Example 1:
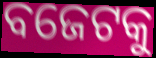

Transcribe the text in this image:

ବଜେଟକୁ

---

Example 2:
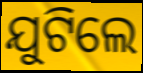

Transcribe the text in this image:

ଯୁଟିଲେ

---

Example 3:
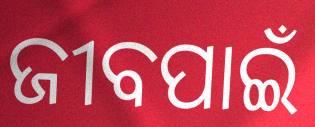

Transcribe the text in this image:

ଜୀବପାଇଁ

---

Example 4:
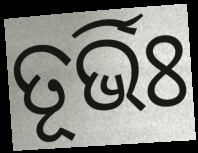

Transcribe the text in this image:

ତୂର୍ଭିଃ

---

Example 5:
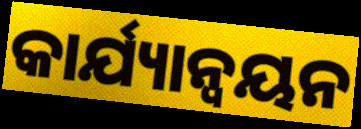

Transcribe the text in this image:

କାର୍ଯ୍ୟାନ୍ବୟନ